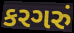
કરગરું